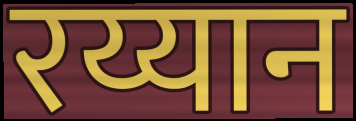
रय्यान